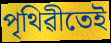
পৃথিৱীতেই